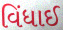
વિંધાઈ